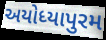
અયોધ્યાપુરમ